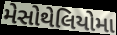
મેસોથેલિયોમા